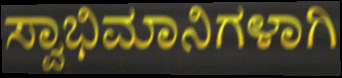
ಸ್ವಾಭಿಮಾನಿಗಳಾಗಿ